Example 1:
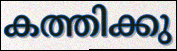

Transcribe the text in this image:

കത്തിക്കു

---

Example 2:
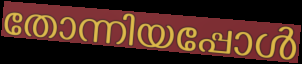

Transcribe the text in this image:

തോന്നിയപ്പോൾ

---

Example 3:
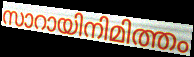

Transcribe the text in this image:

സാറായിനിമിത്തം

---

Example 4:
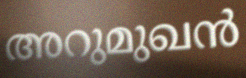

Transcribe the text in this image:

അറുമുഖൻ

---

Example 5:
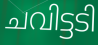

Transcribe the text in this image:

ചവിട്ടടി